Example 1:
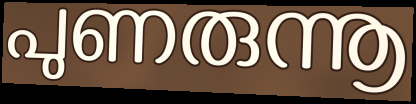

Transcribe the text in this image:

പുണരുന്നൂ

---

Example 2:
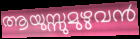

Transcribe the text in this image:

ആയുസ്സുമുഴുവൻ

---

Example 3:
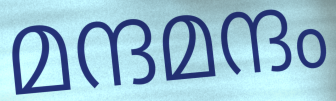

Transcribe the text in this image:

മന്ദമന്ദം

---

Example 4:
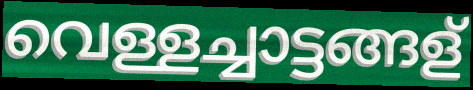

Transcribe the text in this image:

വെള്ളച്ചാട്ടങ്ങള്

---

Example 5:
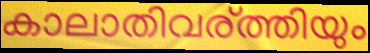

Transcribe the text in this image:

കാലാതിവര്ത്തിയും